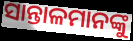
ସାନ୍ତାଳମାନଙ୍କୁ